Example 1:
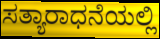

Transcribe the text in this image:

ಸತ್ಯಾರಾಧನೆಯಲ್ಲಿ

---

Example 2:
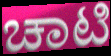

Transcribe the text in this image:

ಚಾಟಿ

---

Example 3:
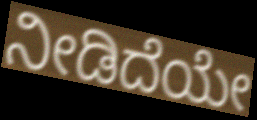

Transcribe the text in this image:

ನೀಡಿದೆಯೇ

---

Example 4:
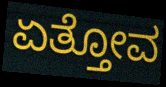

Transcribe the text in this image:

ಏತ್ತೋವ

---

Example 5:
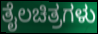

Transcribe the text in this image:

ತೈಲಚಿತ್ರಗಳು